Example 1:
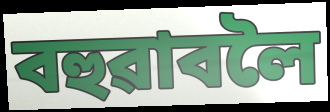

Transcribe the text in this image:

বহুৱাবলৈ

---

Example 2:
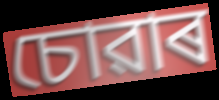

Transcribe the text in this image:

চোৱাৰ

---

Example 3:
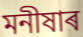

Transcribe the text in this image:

মনীষাৰ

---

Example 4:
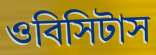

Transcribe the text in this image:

ওবিসিটাস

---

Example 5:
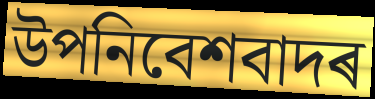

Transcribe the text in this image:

উপনিবেশবাদৰ